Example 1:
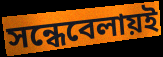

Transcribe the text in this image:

সন্ধেবেলায়ই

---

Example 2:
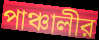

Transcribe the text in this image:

পাঞ্চালীর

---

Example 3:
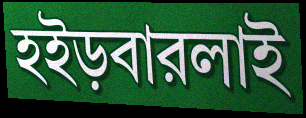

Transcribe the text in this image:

হইড়বারলাই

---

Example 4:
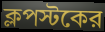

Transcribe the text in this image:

ক্লপস্টকের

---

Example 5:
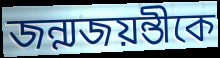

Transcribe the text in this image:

জন্মজয়ন্তীকে